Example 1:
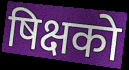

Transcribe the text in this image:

षिक्षको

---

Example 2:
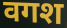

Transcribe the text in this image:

वगश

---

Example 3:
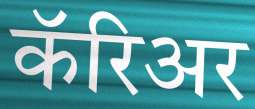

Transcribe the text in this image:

कॅरिअर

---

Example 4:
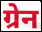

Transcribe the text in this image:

ग्रेन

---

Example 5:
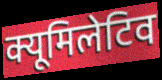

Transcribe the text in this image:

क्यूमिलेटिव